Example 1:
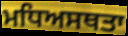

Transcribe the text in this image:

ਮਧਿਅਸਥਤਾ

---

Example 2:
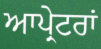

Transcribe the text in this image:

ਆਪ੍ਰੇਟਰਾਂ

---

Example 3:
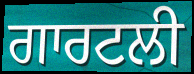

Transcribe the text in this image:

ਗਾਰਟਲੀ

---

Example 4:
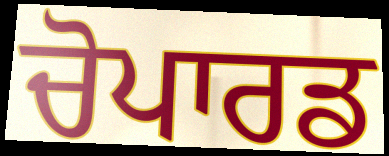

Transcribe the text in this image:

ਚੋਪਾਰਡ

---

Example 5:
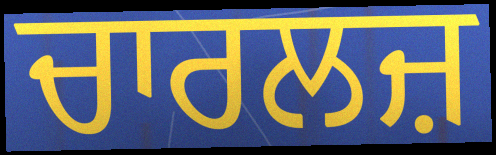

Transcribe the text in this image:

ਚਾਰਲਜ਼